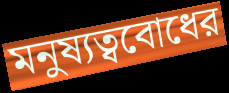
মনুষ্যত্ববোধের